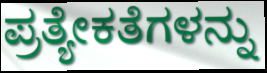
ಪ್ರತ್ಯೇಕತೆಗಳನ್ನು